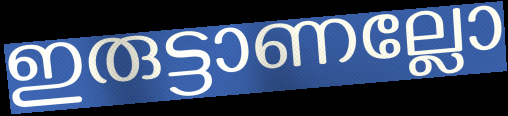
ഇരുട്ടാണല്ലോ